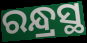
ରନ୍ଧ୍ରସ୍ଥ